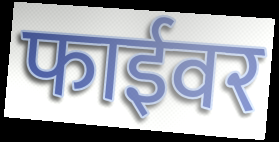
फाईवर